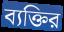
ব্যক্তির